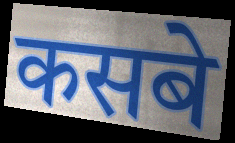
कसबे